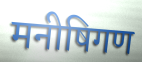
मनीषिगण